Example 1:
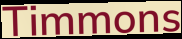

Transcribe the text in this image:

Timmons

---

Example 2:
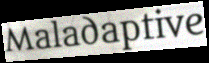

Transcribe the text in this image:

Maladaptive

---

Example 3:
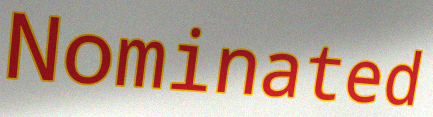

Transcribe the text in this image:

Nominated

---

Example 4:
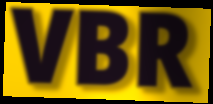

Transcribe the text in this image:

VBR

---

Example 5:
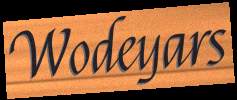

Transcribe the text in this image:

Wodeyars